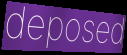
deposed